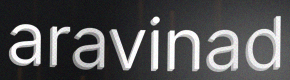
aravinad